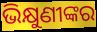
ଭିକ୍ଷୁଣୀଙ୍କର